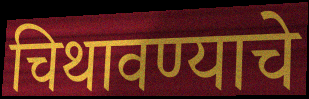
चिथावण्याचे